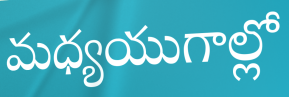
మధ్యయుగాల్లో